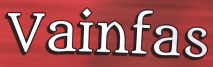
Vainfas